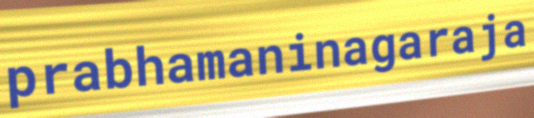
prabhamaninagaraja